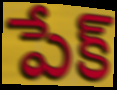
పేక్